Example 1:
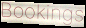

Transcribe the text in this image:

Bookings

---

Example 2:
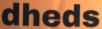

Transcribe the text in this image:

dheds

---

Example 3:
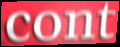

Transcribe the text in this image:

cont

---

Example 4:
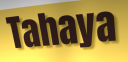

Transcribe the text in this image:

Tahaya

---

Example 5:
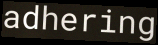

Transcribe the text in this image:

adhering